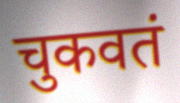
चुकवतं